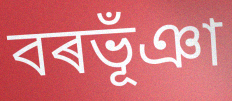
বৰভূঁঞা